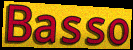
Basso